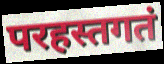
परहस्तगतं